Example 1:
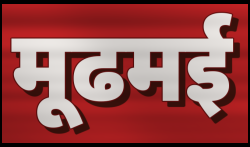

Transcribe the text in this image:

मूढमई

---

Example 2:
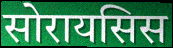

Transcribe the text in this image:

सोरायसिस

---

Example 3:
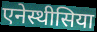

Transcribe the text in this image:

एनेस्थीसिया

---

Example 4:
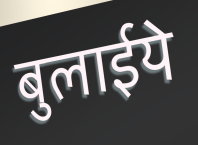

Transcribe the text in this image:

बुलाईये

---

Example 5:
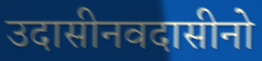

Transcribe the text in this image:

उदासीनवदासीनो